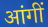
आंगीं